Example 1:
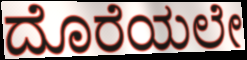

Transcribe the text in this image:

ದೊರೆಯಲೇ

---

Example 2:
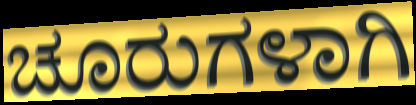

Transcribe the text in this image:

ಚೂರುಗಳಾಗಿ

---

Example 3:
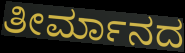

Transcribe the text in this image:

ತೀರ್ಮಾನದ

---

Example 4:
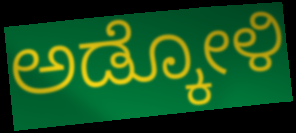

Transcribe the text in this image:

ಅಡ್ಕೋಳಿ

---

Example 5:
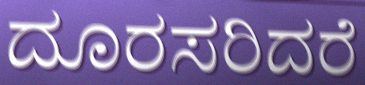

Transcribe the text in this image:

ದೂರಸರಿದರೆ